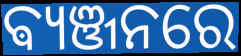
ଵ୍ୟଞ୍ଜନରେ